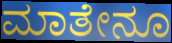
ಮಾತೇನೂ